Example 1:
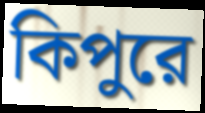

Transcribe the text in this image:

কিপুরে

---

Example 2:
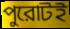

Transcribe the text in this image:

পুরোটই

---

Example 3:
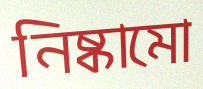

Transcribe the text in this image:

নিষ্কামো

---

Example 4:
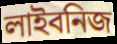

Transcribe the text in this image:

লাইবনিজ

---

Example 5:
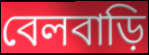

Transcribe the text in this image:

বেলবাড়ি